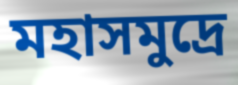
মহাসমুদ্রে